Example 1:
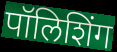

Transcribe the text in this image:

पॉलिशिंग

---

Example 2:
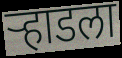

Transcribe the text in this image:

ऱ्हाडला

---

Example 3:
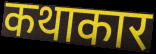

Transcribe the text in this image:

कथाकार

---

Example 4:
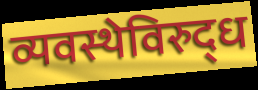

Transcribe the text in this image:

व्यवस्थेविरुद्ध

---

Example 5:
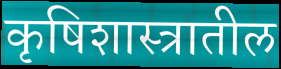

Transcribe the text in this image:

कृषिशास्त्रातील